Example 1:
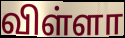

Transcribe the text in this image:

விள்ளா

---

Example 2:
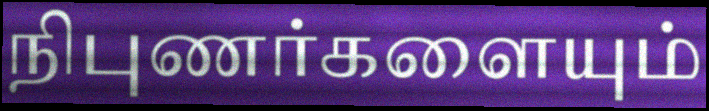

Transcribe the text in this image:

நிபுணர்களையும்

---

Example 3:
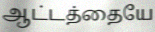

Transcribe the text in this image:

ஆட்டத்தையே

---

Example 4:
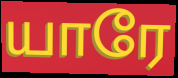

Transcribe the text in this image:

யாரே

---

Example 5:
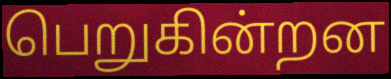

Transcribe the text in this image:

பெறுகின்றன